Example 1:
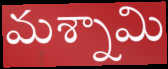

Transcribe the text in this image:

మశ్నామి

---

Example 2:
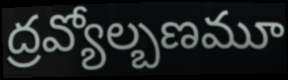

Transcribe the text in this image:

ద్రవ్యోల్బణమూ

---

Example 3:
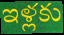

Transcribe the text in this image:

ఇళ్లకు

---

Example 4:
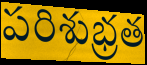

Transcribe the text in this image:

పరిశుభ్రత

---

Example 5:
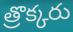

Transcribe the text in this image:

త్రొక్కరు